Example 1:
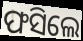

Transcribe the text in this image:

ଫସିଲେ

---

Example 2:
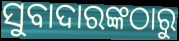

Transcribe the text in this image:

ସୁବାଦାରଙ୍କଠାରୁ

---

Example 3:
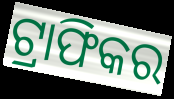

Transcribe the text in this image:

ଟ୍ରାଫିକର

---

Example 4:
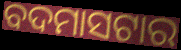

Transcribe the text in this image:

ବଦମାସଟାର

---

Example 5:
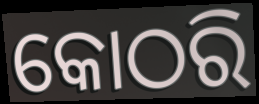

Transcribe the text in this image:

କୋଠରି